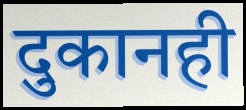
दुकानही